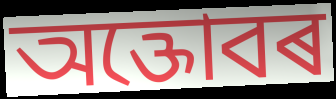
অক্তোবৰ